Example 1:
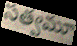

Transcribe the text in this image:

సత్వమూ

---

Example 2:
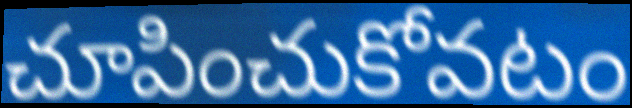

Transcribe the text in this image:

చూపించుకోవటం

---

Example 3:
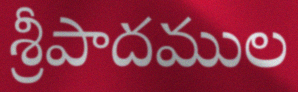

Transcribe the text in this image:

శ్రీపాదముల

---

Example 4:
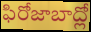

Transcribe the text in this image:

ఫిరోజాబాద్లో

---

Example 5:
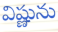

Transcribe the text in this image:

విష్ణును